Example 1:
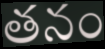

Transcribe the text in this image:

తనం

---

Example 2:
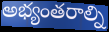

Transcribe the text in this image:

అభ్యంతరాల్ని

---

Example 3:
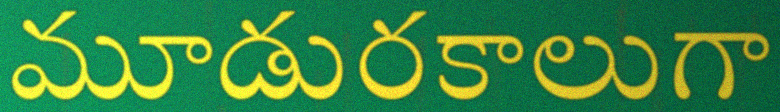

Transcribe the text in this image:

మూడురకాలుగా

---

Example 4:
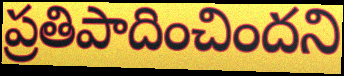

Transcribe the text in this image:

ప్రతిపాదించిందని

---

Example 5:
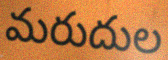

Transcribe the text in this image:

మరుదుల